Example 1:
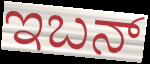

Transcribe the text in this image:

ಇಬನ್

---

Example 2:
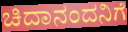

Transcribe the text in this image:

ಚಿದಾನಂದನಿಗೆ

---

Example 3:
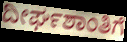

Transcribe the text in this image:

ದೀರ್ಘಶಾಂತಿಗೆ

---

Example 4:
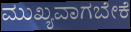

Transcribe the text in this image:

ಮುಖ್ಯವಾಗಬೇಕೆ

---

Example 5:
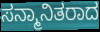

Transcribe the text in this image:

ಸನ್ಮಾನಿತರಾದ